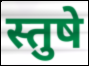
स्तुषे